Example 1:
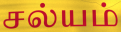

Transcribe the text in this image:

சல்யம்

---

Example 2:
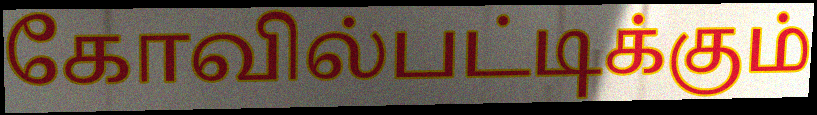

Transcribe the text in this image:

கோவில்பட்டிக்கும்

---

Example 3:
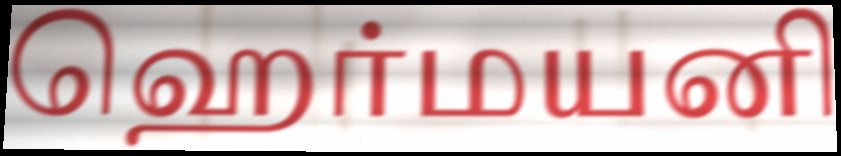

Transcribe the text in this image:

ஹெர்மயனி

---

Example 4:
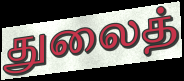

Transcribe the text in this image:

துலைத்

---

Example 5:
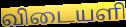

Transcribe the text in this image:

விடையளி